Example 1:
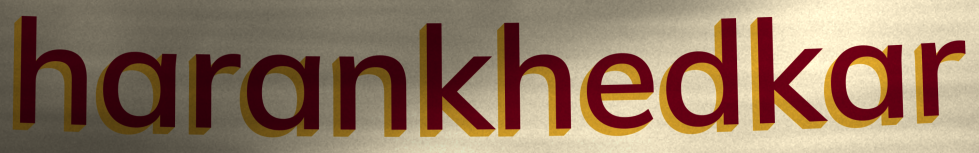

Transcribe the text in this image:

harankhedkar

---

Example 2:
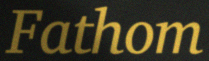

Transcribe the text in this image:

Fathom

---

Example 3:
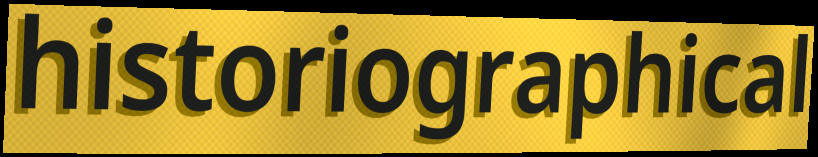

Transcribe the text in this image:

historiographical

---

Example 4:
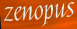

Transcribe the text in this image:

zenopus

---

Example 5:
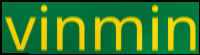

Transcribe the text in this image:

vinmin